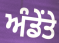
ਅੰਡੇਂਤੇ